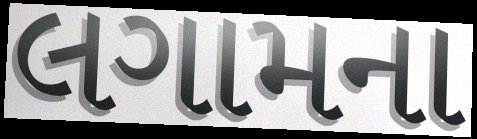
લગામના